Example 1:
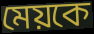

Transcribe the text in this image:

মেয়কে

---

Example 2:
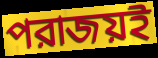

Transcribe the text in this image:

পরাজয়ই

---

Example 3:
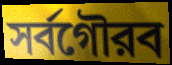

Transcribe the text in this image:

সর্বগৌরব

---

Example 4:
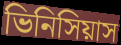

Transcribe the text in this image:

ভিনিসিয়াস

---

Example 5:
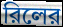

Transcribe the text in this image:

রিলের